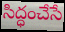
సిద్ధంచేసే